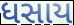
ધસાય